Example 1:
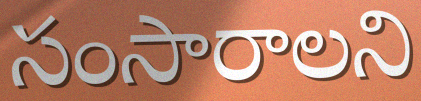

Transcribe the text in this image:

సంసారాలని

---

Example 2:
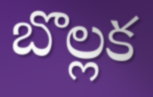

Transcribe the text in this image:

బొల్లక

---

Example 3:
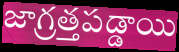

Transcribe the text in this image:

జాగ్రత్తపడ్డాయి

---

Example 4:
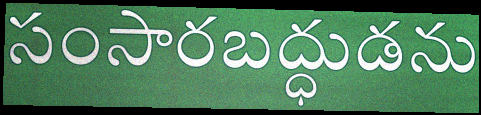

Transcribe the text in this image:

సంసారబద్ధుడను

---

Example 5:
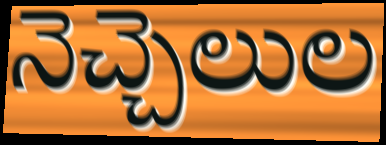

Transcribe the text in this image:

నెచ్చెలుల